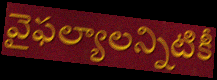
వైఫల్యాలన్నిటికీ